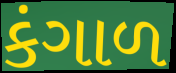
કંગાળ